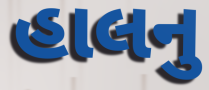
હાલનુ